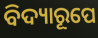
ବିଦ୍ୟାରୂପେ